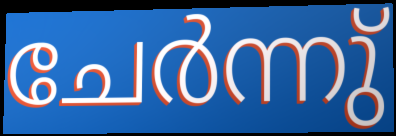
ചേർന്നു്